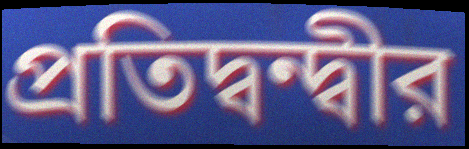
প্রতিদ্বন্দ্বীর